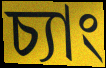
চ্যাং